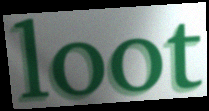
loot